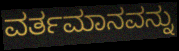
ವರ್ತಮಾನವನ್ನು